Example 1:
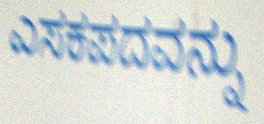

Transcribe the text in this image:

ಎಸಕಪದವನ್ನು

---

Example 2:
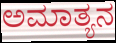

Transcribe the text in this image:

ಅಮಾತ್ಯನ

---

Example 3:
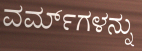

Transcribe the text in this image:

ವರ್ಮ್‌ಗಳನ್ನು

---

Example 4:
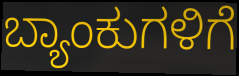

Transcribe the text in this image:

ಬ್ಯಾಂಕುಗಳಿಗೆ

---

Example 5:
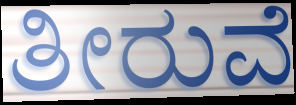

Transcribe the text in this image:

ತೀರುವೆ